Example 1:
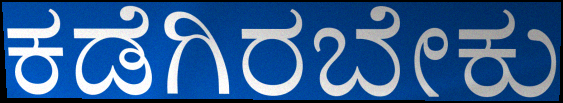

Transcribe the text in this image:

ಕಡೆಗಿರಬೇಕು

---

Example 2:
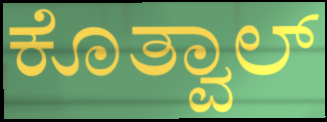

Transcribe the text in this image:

ಕೊತ್ವಾಲ್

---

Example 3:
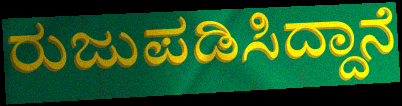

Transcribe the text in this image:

ರುಜುಪಡಿಸಿದ್ದಾನೆ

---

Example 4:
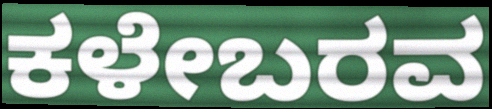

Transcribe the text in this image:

ಕಳೇಬರವ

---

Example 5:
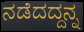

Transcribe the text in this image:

ನಡೆದದ್ದನ್ನ